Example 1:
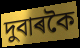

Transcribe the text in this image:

দুবাৰকৈ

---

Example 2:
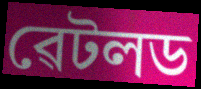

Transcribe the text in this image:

ৱেটলড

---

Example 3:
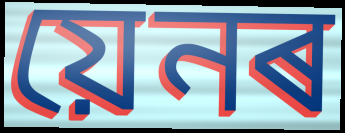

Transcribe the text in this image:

য়েনৰ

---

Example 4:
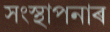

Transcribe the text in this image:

সংস্থাপনাৰ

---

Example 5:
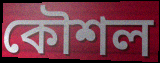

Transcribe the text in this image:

কৌশল